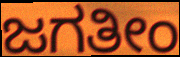
ಜಗತೀಂ